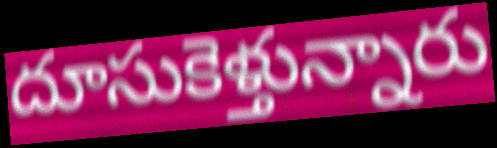
దూసుకెళ్తున్నారు